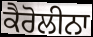
ਕੈਰੋਲੀਨਾ